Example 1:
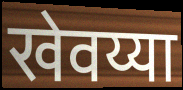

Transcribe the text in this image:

खेवय्या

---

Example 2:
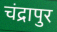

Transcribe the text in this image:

चंद्रापुर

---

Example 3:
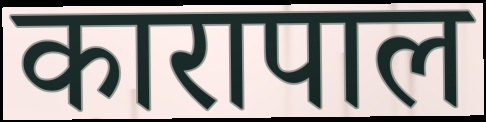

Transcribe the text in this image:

कारापाल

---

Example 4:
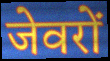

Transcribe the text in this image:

जेवरों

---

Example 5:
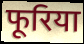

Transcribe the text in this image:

फूरिया